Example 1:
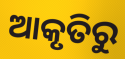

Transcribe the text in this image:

ଆକୃତିରୁ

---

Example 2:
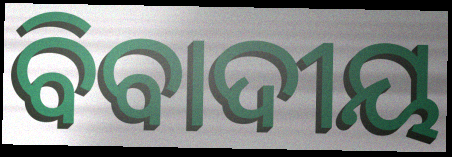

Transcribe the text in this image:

ବିବାଦୀୟ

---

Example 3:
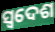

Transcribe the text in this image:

ସ୍ୱଦେଶ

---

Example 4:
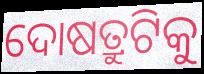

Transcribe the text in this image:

ଦୋଷତ୍ରୁଟିକୁ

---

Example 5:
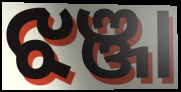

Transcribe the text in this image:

ଝଞ୍ଜା